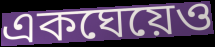
একঘেয়েও